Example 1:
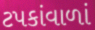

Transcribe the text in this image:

ટપકાંવાળાં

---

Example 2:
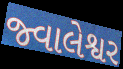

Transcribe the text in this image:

જ્વાલેશ્વર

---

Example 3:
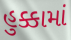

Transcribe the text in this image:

હુક્કામાં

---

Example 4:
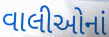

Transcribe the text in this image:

વાલીઓનાં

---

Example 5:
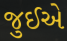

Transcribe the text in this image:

જુઈએ